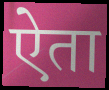
ऐता